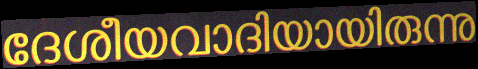
ദേശീയവാദിയായിരുന്നു